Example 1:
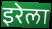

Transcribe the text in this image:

इरेला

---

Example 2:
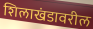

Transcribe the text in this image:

शिलाखंडावरील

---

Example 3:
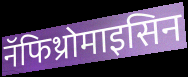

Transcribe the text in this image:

नॅफिथ्रोमाइसिन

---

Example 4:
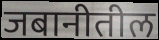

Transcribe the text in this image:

जबानीतील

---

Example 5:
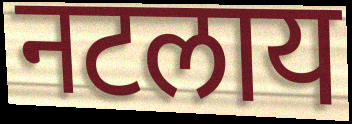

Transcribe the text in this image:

नटलाय